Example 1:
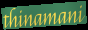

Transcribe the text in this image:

thinamani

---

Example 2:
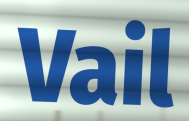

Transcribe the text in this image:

Vail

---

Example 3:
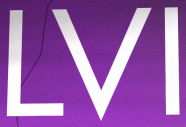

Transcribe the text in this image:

LVI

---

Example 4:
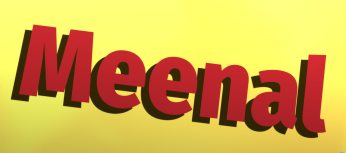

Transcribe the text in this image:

Meenal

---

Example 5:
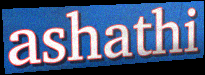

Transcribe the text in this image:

ashathi